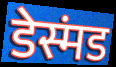
डेस्मंड